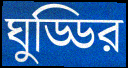
ঘুড্ডির